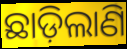
ଛାଡ଼ିଲାଣି